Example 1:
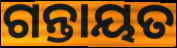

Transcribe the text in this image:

ଗନ୍ତାୟତ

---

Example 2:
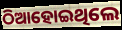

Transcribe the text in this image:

ଠିଆହୋଇଥିଲେ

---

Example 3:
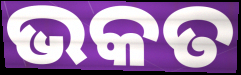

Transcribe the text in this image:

ଭକତ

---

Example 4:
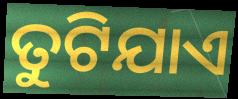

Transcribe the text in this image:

ତୁଟିଯାଏ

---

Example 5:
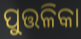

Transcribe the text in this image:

ପୁତ୍ତଳିକା